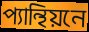
প্যান্থিয়নে